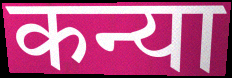
कन्या